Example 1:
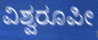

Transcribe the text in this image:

ವಿಶ್ವರೂಪೀ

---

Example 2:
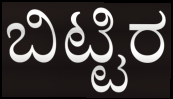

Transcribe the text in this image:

ಬಿಟ್ಟಿರ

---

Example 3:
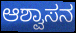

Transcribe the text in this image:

ಆಶ್ವಾಸನ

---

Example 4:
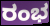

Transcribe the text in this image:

ರಂಭ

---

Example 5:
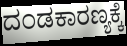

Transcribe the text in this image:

ದಂಡಕಾರಣ್ಯಕ್ಕೆ